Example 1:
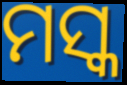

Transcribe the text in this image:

ମସ୍କ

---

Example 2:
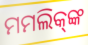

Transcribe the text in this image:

ମମଲିକ୍‌ଙ୍କ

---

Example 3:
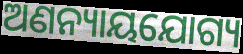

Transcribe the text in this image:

ଅଣନ୍ୟାୟଯୋଗ୍ୟ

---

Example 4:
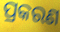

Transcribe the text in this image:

ପ୍ରକରଣ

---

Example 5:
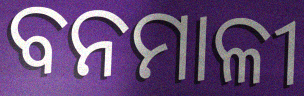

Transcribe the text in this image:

ବନମାଳୀ